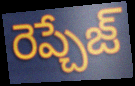
రెప్చేజ్